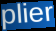
plier